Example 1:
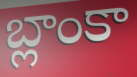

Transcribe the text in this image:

బ్లాంకా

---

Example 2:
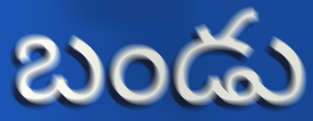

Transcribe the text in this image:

బండు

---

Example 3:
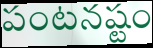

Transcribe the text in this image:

పంటనష్టం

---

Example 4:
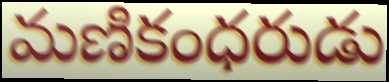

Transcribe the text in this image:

మణికంధరుడు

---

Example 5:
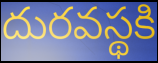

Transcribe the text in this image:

దురవస్థకి